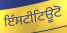
ਇੰਸਟੀਟਿਊਟੋ